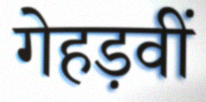
गेहड़वीं